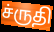
ச்ருதி